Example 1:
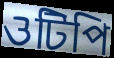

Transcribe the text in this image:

ওটিপি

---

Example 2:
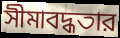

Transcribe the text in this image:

সীমাবদ্ধতার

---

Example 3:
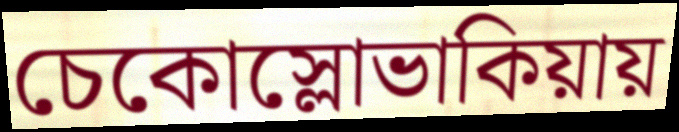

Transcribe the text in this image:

চেকোস্লোভাকিয়ায়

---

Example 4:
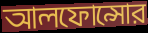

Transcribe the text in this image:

আলফোন্সোর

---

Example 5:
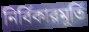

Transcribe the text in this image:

নির্বিকারমূর্তি